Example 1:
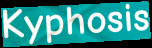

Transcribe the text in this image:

Kyphosis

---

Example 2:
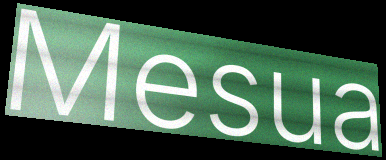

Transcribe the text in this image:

Mesua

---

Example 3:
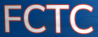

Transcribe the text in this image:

FCTC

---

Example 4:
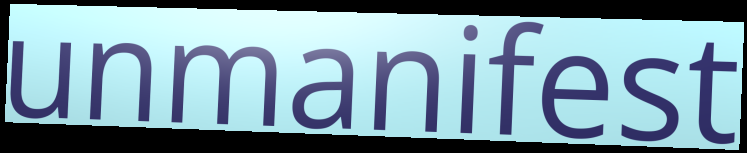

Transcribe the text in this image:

unmanifest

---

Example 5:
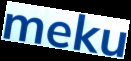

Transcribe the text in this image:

meku